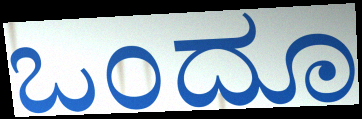
ಒಂದೂ